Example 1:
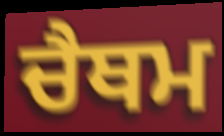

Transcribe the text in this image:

ਚੈਥਮ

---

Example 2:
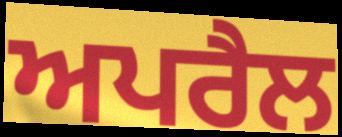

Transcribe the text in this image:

ਅਪਰੈਲ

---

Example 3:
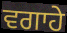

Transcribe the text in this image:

ਵਗਾਹੇ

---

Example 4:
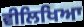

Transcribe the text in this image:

ਵੀਲਿਖਿਆ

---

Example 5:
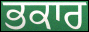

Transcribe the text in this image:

ਭਕਾਰ